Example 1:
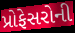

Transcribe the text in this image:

પ્રોફેસરોની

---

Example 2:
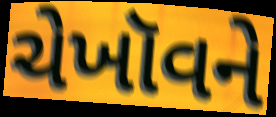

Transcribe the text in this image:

ચેખૉવને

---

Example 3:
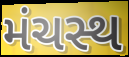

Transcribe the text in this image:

મંચસ્થ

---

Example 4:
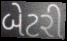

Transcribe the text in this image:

બેટરી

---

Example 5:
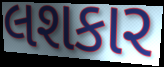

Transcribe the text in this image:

લશકાર